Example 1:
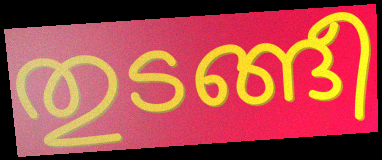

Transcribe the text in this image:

തുടങ്ങീ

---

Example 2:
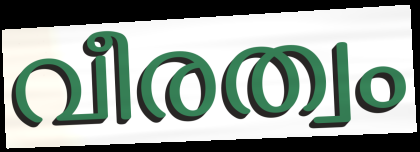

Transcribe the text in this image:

വീരത്വം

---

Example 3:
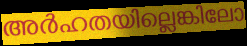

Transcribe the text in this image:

അർഹതയില്ലെങ്കിലോ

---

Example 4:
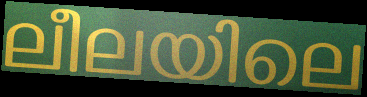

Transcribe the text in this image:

ലീലയിലെ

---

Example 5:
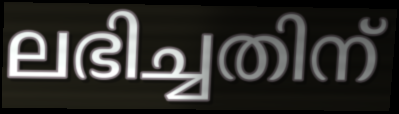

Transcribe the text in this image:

ലഭിച്ചതിന്